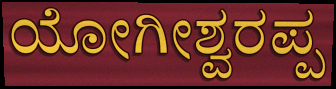
ಯೋಗೀಶ್ವರಪ್ಪ